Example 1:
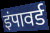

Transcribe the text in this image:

इंपावर्ड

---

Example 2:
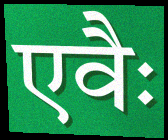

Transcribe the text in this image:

एवैः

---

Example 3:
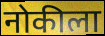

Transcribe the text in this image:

नोकीला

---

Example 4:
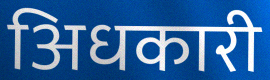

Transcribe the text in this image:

अिधकारी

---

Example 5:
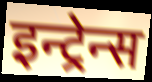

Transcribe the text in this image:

इन्ट्रेन्स